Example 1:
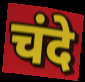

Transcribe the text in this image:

चंदे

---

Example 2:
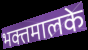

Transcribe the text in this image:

भक्तमालके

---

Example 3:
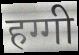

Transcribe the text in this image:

हग्गी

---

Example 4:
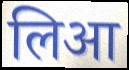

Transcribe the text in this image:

लिआ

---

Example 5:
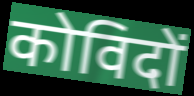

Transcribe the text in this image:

कोविदों